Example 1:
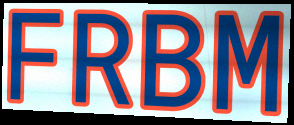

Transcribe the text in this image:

FRBM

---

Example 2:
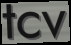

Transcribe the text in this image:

tcv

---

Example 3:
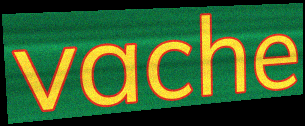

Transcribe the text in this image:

vache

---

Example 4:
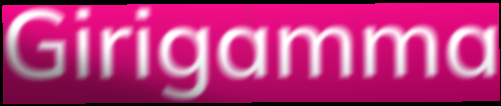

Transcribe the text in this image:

Girigamma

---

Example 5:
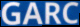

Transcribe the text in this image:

GARC